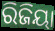
ରିଜିୟା